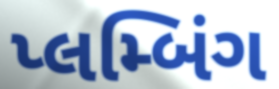
પ્લમ્બિંગ